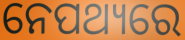
ନେପଥ୍ୟରେ